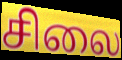
சிலை